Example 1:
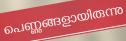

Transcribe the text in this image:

പെണ്ണുങ്ങളായിരുന്നു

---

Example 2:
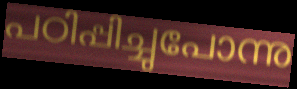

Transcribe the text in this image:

പഠിപ്പിച്ചുപോന്നു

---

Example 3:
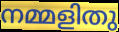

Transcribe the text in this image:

നമ്മളിതു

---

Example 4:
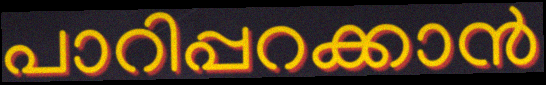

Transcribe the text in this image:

പാറിപ്പറക്കാൻ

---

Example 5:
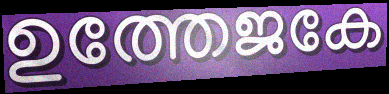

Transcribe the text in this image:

ഉത്തേജകേ